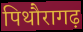
पिथौरागढ़